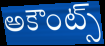
అకౌంట్స్